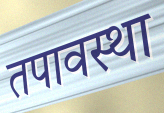
तपावस्था